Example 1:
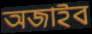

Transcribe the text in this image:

অজাইব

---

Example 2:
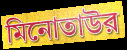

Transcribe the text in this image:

মিনোতাউর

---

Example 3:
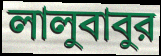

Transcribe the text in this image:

লালুবাবুর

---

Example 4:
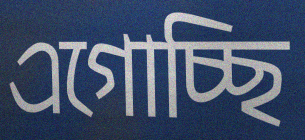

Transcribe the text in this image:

এগোচ্ছি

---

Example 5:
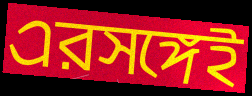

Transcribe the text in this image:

এরসঙ্গেই